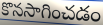
కొనసాగించడం